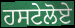
ਹਸਟੇਲੋਏ